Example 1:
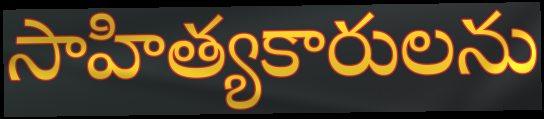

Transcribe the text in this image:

సాహిత్యకారులను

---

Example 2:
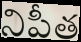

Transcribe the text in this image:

నిపీత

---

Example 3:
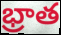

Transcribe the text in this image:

భ్రాత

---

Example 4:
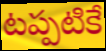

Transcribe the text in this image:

టప్పటికే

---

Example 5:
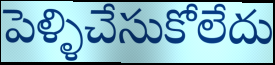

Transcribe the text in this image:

పెళ్ళిచేసుకోలేదు